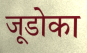
जूडोका